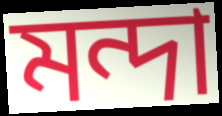
মন্দা